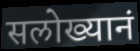
सलोख्यानं